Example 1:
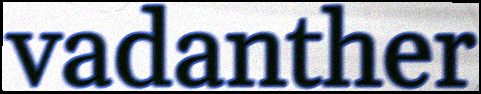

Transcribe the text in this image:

vadanther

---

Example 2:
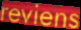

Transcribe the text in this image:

reviens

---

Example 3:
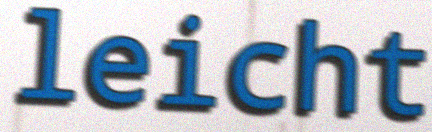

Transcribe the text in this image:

leicht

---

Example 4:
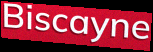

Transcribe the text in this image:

Biscayne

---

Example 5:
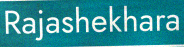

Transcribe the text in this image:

Rajashekhara